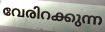
വേരിറക്കുന്ന